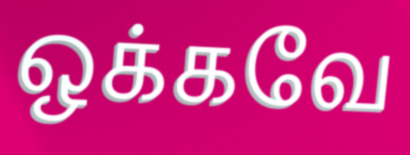
ஒக்கவே